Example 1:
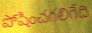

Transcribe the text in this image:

పోషించగలిగేది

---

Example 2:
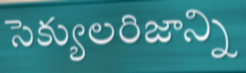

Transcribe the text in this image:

సెక్యులరిజాన్ని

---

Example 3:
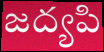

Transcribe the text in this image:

జద్యపి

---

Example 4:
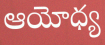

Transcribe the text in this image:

ఆయోధ్య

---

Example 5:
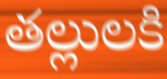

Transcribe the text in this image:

తల్లులకి